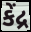
કેંદ્ર